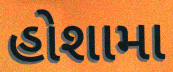
હોશામા